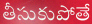
తీసుకుపోతే